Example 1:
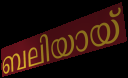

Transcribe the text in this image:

ബലിയായ്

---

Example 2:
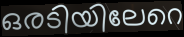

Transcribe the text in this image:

ഒരടിയിലേറെ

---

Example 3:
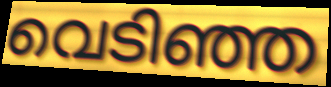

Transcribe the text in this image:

വെടിഞ്ഞ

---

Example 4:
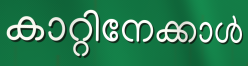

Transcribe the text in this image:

കാറ്റിനേക്കാൾ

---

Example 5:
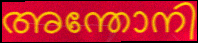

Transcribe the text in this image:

അന്തോനി